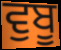
ਵੁਬੂ